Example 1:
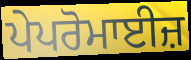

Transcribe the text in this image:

ਪੇਪਰੋਮਾਈਜ਼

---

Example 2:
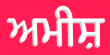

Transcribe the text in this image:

ਅਮੀਸ਼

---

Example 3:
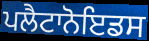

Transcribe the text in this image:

ਪਲੈਟਾਨੋਇਡਸ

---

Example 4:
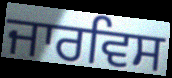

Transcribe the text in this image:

ਜਾਰਵਿਸ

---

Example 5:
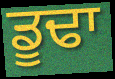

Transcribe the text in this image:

ਡੂਢਾ